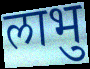
लाभु